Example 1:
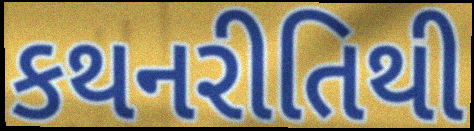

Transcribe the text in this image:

કથનરીતિથી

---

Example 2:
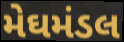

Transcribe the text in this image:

મેઘમંડલ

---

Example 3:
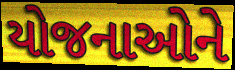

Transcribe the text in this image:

યોજનાઓને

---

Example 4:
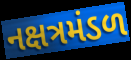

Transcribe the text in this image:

નક્ષત્રમંડળ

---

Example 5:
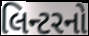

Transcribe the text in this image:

લિન્ટરનો